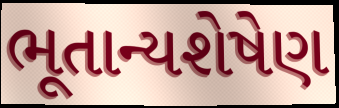
ભૂતાન્યશેષેણ